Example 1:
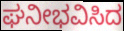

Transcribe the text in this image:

ಘನೀಭವಿಸಿದ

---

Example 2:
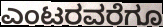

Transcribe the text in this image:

ಎಂಟರವರೆಗೂ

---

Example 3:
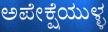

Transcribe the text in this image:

ಅಪೇಕ್ಷೆಯುಳ್ಳ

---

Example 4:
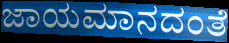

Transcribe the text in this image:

ಜಾಯಮಾನದಂತೆ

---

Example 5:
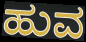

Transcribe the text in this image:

ಹುವ